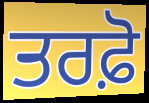
ਤਰਫ਼ੋ